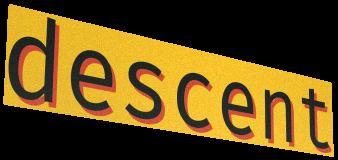
descent